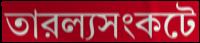
তারল্যসংকটে